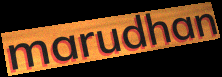
marudhan